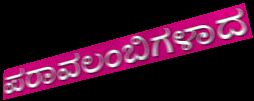
ಪರಾವಲಂಬಿಗಳಾದ